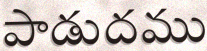
పాడుదము